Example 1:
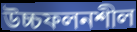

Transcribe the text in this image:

উচ্চফলনশীল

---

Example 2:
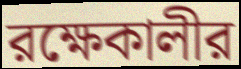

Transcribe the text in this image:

রক্ষেকালীর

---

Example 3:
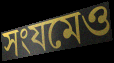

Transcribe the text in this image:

সংযমেও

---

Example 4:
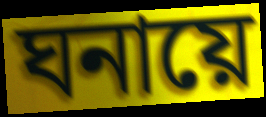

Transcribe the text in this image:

ঘনায়ে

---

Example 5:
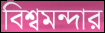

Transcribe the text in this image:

বিশ্বমন্দার